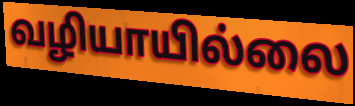
வழியாயில்லை